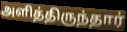
அளித்திருந்தார்